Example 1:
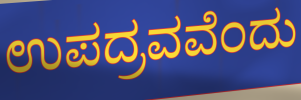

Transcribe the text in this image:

ಉಪದ್ರವವೆಂದು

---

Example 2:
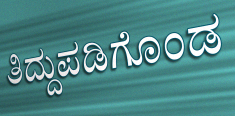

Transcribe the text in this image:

ತಿದ್ದುಪಡಿಗೊಂಡ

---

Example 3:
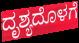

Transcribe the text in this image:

ದೃಶ್ಯದೊಳಗೆ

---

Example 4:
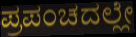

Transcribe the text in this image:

ಪ್ರಪಂಚದಲ್ಲೇ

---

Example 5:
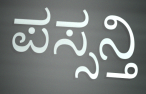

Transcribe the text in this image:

ಪಸ್ಸನ್ತಿ